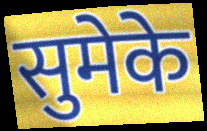
सुमेके